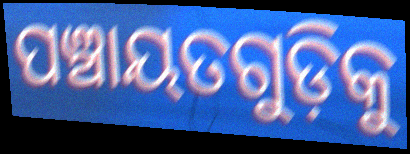
ପଞ୍ଚାୟତଗୁଡ଼ିକୁ